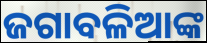
ଜଗାବଳିଆଙ୍କ